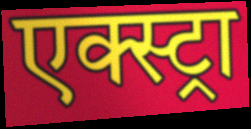
एक्स्ट्रा